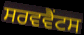
ਸਰਵਵੈਂਟਸ